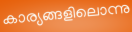
കാര്യങ്ങളിലൊന്നു